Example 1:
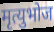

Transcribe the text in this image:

मृत्युभोज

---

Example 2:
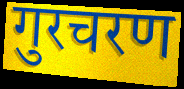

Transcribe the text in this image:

गुरचरण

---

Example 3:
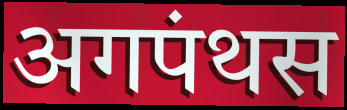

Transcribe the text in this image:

अगपंथस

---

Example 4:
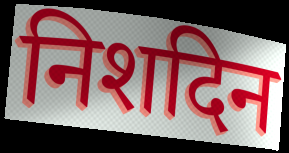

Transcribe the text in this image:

निशदिन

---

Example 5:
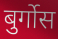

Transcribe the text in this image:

बुर्गोस